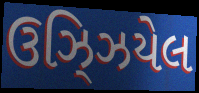
ઉઝ્ઝિયેલ